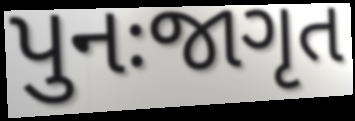
પુનઃજાગૃત